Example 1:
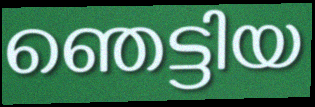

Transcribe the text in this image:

ഞെട്ടിയ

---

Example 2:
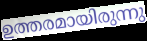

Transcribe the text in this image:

ഉത്തരമായിരുന്നു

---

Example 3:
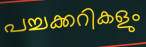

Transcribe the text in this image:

പച്ചക്കറികളും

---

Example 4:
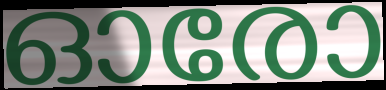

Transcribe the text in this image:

ഓരോ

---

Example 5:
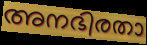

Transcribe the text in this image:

അനഭിരതാ